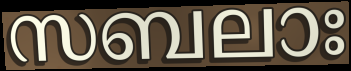
സബലാഃ